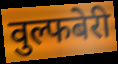
वुल्फबेरी